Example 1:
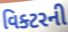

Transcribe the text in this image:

વિક્ટરની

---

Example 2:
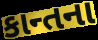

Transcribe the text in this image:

કાન્તના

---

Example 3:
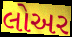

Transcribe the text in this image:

લોઅર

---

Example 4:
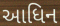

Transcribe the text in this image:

આધિન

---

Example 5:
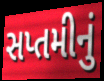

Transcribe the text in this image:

સપ્તમીનું